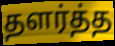
தளர்த்த